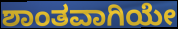
ಶಾಂತವಾಗಿಯೇ